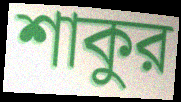
শাকুর